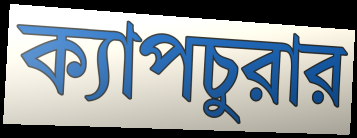
ক্যাপচুরার